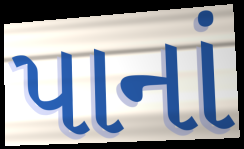
પાનાં